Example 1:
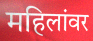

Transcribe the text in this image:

महिलांवर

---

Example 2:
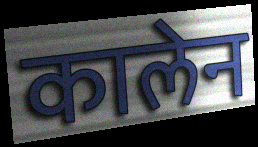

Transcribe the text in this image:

कालेन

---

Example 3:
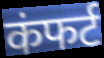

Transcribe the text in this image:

कंफर्ट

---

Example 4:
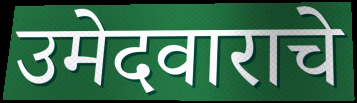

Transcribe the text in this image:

उमेदवाराचे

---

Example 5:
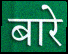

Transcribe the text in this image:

बारे